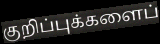
குறிப்புக்களைப்